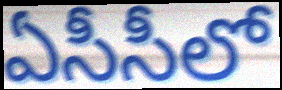
ఏసీసీలో